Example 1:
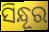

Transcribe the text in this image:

ସିନ୍ଧୂର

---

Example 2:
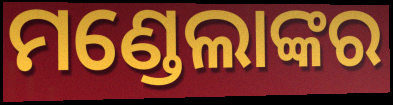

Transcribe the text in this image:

ମଣ୍ଡେଲାଙ୍କର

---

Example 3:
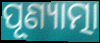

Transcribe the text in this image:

ପୂଣ୍ୟାତ୍ମା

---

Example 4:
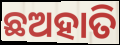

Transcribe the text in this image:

ଛଅହାତି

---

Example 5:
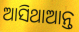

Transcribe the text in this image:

ଆସିଥାଆନ୍ତ